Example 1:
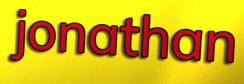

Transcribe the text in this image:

jonathan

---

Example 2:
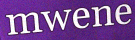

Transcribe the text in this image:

mwene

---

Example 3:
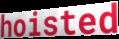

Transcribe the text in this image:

hoisted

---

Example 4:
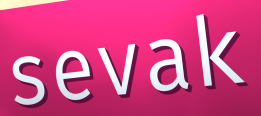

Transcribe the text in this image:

sevak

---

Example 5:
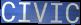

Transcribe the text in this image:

CIVIC